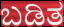
ಬಡಿತ